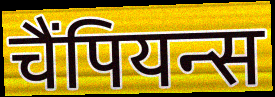
चैंपियन्स